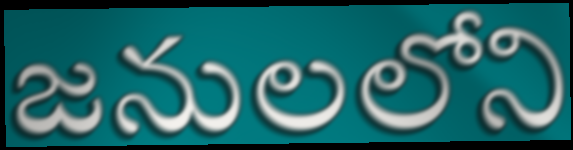
జనులలోని